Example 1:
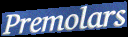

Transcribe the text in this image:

Premolars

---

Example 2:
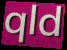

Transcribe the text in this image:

qld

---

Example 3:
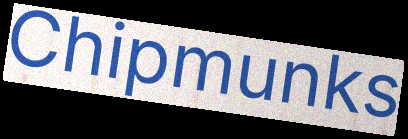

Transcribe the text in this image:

Chipmunks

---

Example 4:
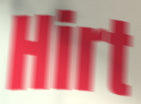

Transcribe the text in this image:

Hirt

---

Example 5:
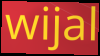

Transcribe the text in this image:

wijal